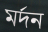
মর্দন